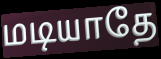
மடியாதே